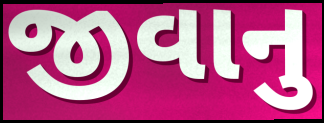
જીવાનુ